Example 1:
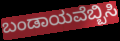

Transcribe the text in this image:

ಬಂಡಾಯವೆಬ್ಬಿಸಿ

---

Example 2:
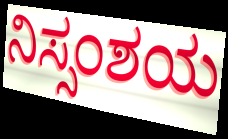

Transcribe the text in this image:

ನಿಸ್ಸಂಶಯ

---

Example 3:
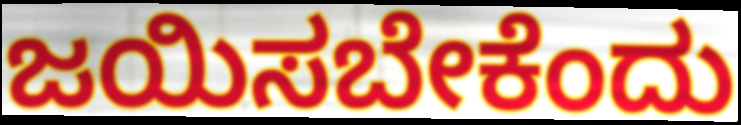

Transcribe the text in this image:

ಜಯಿಸಬೇಕೆಂದು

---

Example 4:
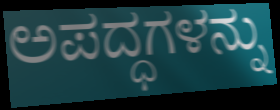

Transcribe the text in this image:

ಅಪದ್ಧಗಳನ್ನು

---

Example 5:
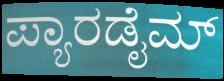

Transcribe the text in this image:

ಪ್ಯಾರಡೈಮ್